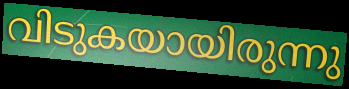
വിടുകയായിരുന്നു